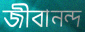
জীবানন্দ